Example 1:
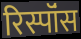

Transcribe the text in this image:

रिस्पॉंस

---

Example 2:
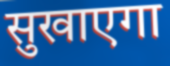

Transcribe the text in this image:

सुखाएगा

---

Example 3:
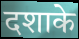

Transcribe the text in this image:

दशाके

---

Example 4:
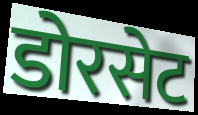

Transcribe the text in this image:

डोरसेट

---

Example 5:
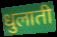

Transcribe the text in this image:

धुलाती